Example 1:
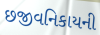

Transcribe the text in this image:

છજીવનિકાયની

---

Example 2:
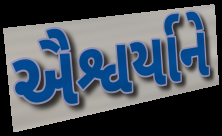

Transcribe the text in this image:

ઐશ્વર્યાને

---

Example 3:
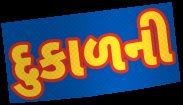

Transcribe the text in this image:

દુકાળની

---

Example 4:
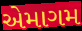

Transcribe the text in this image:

એમાગમ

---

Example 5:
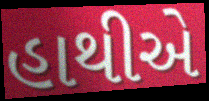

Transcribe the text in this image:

હાથીએ